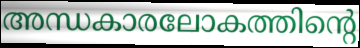
അന്ധകാരലോകത്തിന്റെ